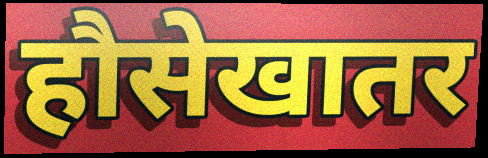
हौसेखातर